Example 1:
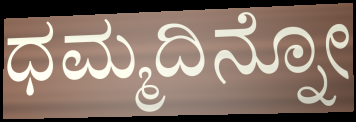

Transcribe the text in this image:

ಧಮ್ಮದಿನ್ನೋ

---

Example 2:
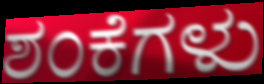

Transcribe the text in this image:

ಶಂಕೆಗಳು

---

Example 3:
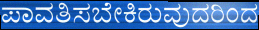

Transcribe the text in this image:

ಪಾವತಿಸಬೇಕಿರುವುದರಿಂದ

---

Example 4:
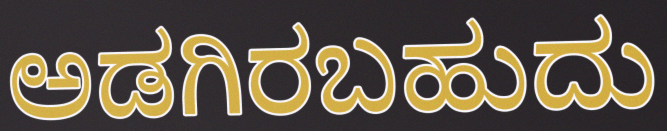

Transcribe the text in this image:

ಅಡಗಿರಬಹುದು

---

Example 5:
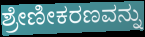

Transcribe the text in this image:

ಶ್ರೇಣೀಕರಣವನ್ನು